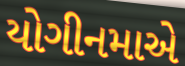
યોગીનમાએ